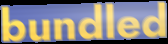
bundled